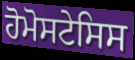
ਹੋਮੋਸਟੇਸਿਸ